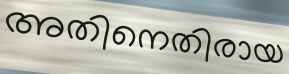
അതിനെതിരായ